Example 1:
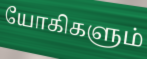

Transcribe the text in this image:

யோகிகளும்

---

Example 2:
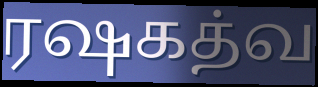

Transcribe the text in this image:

ரஷகத்வ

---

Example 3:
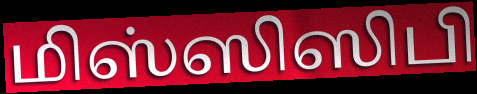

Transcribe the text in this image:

மிஸ்ஸிஸிபி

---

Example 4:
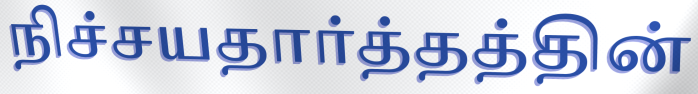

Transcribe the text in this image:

நிச்சயதார்த்தத்தின்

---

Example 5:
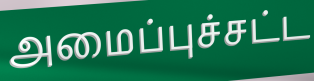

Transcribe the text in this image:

அமைப்புச்சட்ட